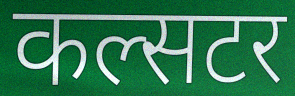
कल्सटर